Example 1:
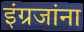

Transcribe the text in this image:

इंग्रजांना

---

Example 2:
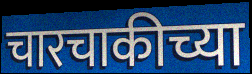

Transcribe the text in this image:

चारचाकीच्या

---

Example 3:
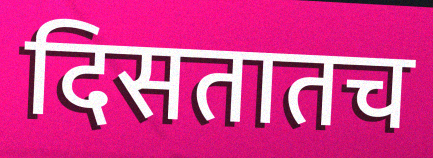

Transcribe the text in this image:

दिसतातच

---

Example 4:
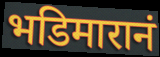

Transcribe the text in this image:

भडिमारानं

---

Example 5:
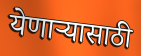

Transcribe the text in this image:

येणाऱ्यासाठी